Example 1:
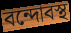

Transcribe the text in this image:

বন্দোবস্থ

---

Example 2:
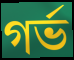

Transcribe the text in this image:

গর্ভ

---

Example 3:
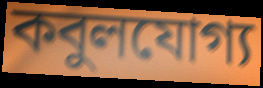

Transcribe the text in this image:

কবুলযোগ্য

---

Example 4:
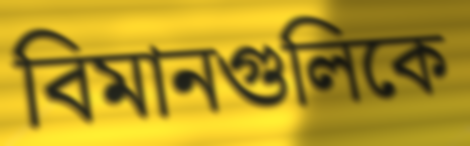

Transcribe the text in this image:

বিমানগুলিকে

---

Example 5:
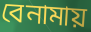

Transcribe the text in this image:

বেনামায়